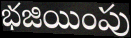
భజియింపు